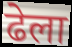
ढेला